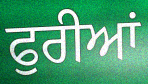
ਫੁਰੀਆਂ